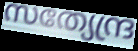
സത്യേന്ദ്ര